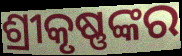
ଶ୍ରୀକୃଷ୍ଣଙ୍କର